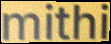
mithi